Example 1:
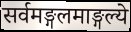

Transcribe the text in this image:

सर्वमङ्गलमाङ्गल्ये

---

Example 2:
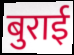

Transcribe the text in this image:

बुराई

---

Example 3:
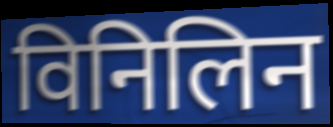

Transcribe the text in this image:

विनिलिन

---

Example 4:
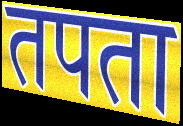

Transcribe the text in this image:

तपता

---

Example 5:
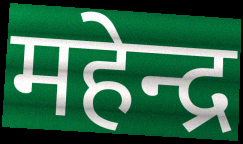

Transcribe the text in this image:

महेन्‍द्र